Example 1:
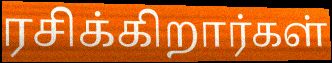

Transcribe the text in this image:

ரசிக்கிறார்கள்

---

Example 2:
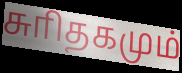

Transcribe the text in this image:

சுரிதகமும்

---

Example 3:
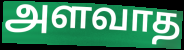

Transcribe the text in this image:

அளவாத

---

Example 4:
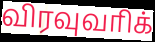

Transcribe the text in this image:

விரவுவரிக்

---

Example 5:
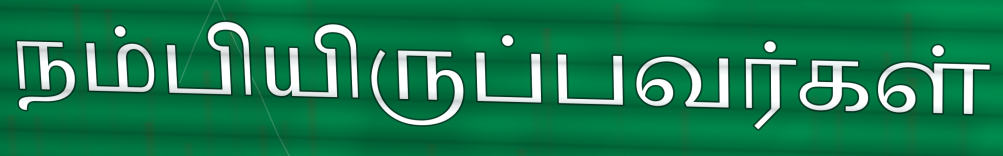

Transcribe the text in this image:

நம்பியிருப்பவர்கள்